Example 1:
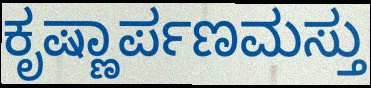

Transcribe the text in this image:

ಕೃಷ್ಣಾರ್ಪಣಮಸ್ತು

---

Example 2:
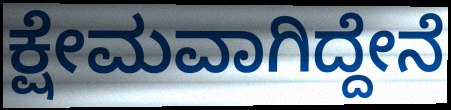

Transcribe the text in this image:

ಕ್ಷೇಮವಾಗಿದ್ದೇನೆ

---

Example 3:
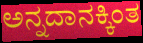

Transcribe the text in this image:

ಅನ್ನದಾನಕ್ಕಿಂತ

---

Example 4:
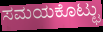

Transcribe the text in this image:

ಸಮಯಕೊಟ್ಟು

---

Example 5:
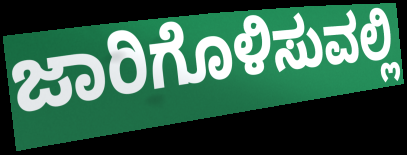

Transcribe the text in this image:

ಜಾರಿಗೊಳಿಸುವಲ್ಲಿ